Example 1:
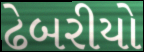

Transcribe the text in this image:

ઢેબરીયો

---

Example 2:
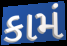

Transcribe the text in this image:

કામં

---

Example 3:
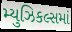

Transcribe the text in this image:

મ્યુઝિકલ્સમાં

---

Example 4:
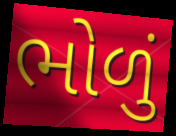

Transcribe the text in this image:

ભોળું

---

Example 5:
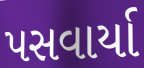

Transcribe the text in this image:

પસવાર્યા